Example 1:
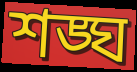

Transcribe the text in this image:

শঙ্ঘ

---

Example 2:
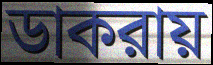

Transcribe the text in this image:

ডাকরায়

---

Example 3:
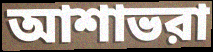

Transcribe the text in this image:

আশাভরা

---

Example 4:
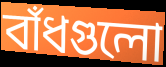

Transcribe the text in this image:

বাঁধগুলো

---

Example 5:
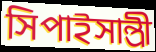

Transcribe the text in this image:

সিপাইসান্ত্রী